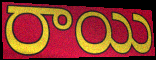
రాయి